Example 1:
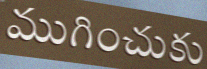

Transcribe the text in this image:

ముగించుకు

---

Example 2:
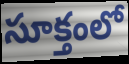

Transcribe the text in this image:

సూక్తంలో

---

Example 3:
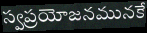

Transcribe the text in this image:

స్వప్రయోజనమునకే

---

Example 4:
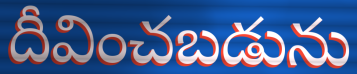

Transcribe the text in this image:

దీవించబడును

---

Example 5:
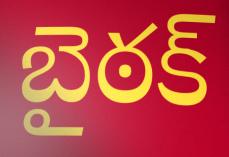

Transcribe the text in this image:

బైఠక్